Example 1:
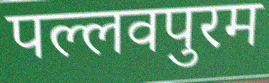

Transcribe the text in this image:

पल्लवपुरम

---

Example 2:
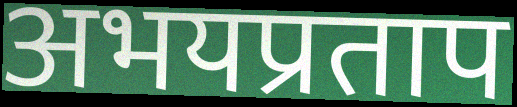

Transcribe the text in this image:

अभयप्रताप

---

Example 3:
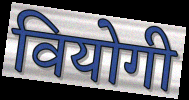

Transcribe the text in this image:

वियोगी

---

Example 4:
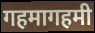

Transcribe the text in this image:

गहमागहमी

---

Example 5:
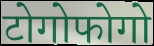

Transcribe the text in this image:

टोगोफोगो